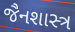
જૈનશાસ્ત્ર